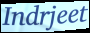
Indrjeet